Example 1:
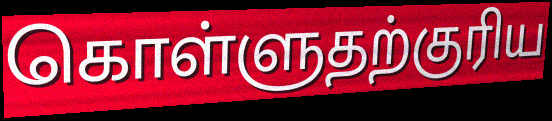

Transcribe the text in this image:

கொள்ளுதற்குரிய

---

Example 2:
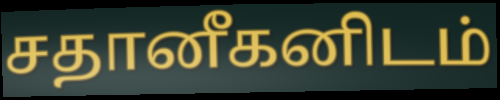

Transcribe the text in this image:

சதானீகனிடம்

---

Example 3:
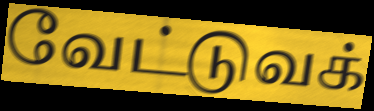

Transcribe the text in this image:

வேட்டுவக்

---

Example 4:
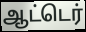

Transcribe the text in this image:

ஆட்டெர்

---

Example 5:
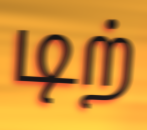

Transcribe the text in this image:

டிற்